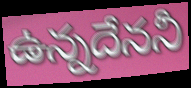
ఉన్నదేననీ